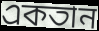
একতান